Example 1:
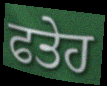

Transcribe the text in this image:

ਫਤੇਹ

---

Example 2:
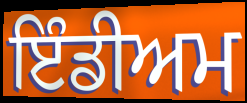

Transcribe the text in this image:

ਇੰਡੀਅਮ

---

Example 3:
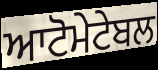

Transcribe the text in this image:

ਆਟੋਮੇਟੇਬਲ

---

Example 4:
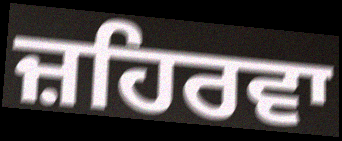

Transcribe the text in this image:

ਜ਼ਹਿਰਵਾ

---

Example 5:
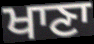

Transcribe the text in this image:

ਖਾਣਾ